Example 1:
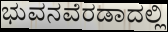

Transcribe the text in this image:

ಭುವನವೆರಡಾದಲ್ಲಿ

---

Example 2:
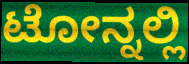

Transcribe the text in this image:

ಟೋನ್ನಲ್ಲಿ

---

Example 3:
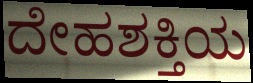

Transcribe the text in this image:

ದೇಹಶಕ್ತಿಯ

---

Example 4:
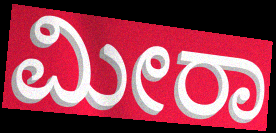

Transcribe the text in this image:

ಮೀರಾ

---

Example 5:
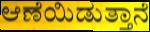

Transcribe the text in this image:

ಆಣೆಯಿಡುತ್ತಾನೆ